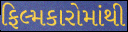
ફિલ્મકારોમાંથી